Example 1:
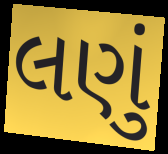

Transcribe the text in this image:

લણું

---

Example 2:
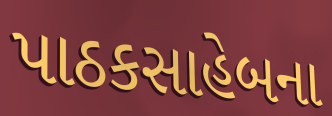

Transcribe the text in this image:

પાઠકસાહેબના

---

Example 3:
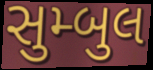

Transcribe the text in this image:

સુમ્બુલ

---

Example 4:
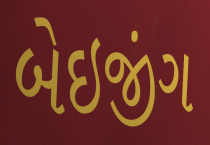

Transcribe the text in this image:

બેઇજીંગ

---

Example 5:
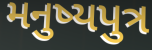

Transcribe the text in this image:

મનુષ્યપુત્ર